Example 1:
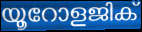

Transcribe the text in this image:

യൂറോളജിക്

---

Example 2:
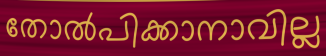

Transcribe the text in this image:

തോൽപിക്കാനാവില്ല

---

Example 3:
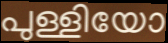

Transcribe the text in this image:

പുള്ളിയോ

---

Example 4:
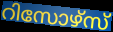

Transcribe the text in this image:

റിസോഴ്സ്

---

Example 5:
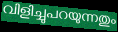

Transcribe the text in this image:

വിളിച്ചുപറയുന്നതും